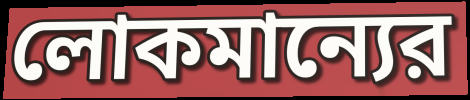
লোকমান্যের